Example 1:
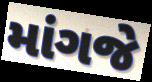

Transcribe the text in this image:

માંગજે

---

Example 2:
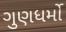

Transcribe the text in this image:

ગુણધર્મો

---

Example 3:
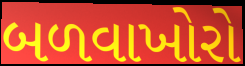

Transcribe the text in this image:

બળવાખોરો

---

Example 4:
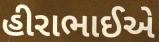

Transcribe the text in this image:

હીરાભાઈએ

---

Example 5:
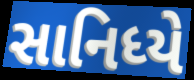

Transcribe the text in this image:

સાનિધ્યે